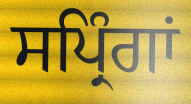
ਸਪ੍ਰਿੰਗਾਂ